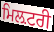
ਮਿਲ਼ਟਰੀ